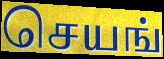
செயங்